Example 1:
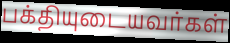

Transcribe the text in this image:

பக்தியுடையவர்கள்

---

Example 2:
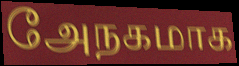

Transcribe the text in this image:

அேநகமாக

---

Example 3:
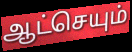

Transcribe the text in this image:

ஆட்செயும்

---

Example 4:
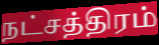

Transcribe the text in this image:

நட்சத்திரம்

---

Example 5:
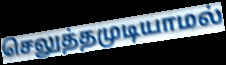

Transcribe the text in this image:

செலுத்தமுடியாமல்